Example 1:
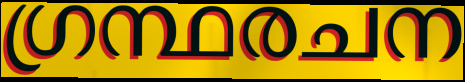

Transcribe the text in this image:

ഗ്രന്ഥരചന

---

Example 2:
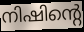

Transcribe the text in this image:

നിഷിന്റെ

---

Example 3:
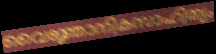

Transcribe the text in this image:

വൈജ്ഞാനികസാഹിത്യം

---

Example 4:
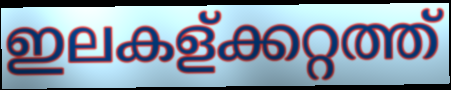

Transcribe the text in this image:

ഇലകള്ക്കറ്റത്ത്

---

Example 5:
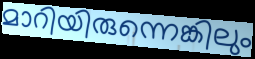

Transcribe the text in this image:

മാറിയിരുന്നെങ്കിലും